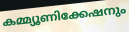
കമ്മ്യൂണിക്കേഷനും